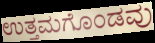
ಉತ್ತಮಗೊಂಡವು